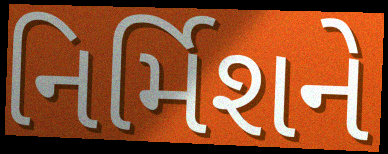
નિર્મિશને